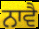
ਨਾਵੈ